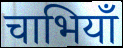
चाभियाँ